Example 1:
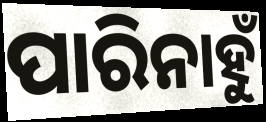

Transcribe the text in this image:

ପାରିନାହୁଁ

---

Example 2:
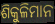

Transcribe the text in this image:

ଶିକୁଳିମାନ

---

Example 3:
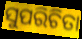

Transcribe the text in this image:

ସୁପରିଚିତା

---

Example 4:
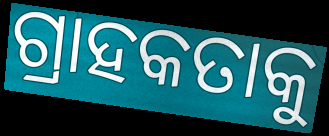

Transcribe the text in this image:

ଗ୍ରାହକତାକୁ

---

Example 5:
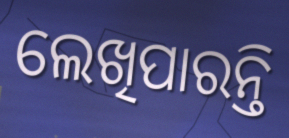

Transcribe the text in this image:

ଲେଖିପାରନ୍ତି